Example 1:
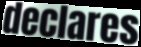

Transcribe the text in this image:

declares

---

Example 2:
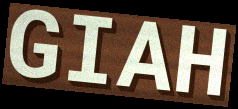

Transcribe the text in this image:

GIAH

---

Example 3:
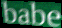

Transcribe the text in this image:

babe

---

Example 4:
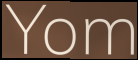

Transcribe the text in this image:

Yom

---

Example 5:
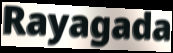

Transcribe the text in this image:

Rayagada